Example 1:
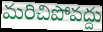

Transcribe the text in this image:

మరిచిపోవద్దు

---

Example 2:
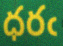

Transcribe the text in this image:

ధరఁ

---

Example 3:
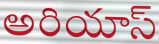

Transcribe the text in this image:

అరియాస్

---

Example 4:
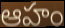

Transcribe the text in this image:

ఆహం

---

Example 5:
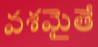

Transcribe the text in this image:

వశమైతే